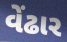
વેંઢાર